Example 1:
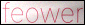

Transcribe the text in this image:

feower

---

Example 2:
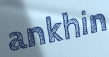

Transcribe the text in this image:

ankhin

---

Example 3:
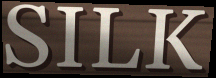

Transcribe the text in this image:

SILK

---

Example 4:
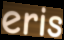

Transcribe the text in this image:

eris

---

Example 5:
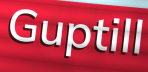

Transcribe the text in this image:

Guptill